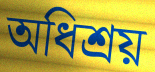
অধিশ্রয়